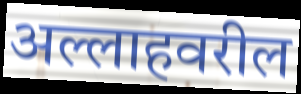
अल्लाहवरील